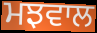
ਮਝਵਾਲ